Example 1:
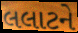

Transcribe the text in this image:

લલાટને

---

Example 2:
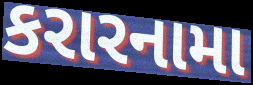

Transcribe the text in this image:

કરારનામા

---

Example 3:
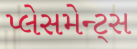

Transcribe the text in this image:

પ્લેસમેન્ટ્સ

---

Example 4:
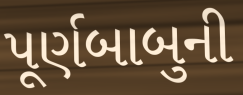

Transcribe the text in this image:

પૂર્ણબાબુની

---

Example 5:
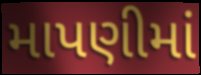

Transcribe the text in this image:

માપણીમાં